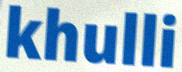
khulli